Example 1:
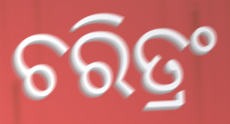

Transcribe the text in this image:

ଚରିତ୍ରଂ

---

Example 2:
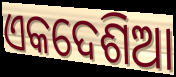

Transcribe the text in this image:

ଏକଦେଶିଆ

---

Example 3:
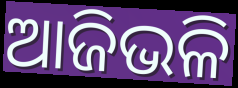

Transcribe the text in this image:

ଆଜିଭଳି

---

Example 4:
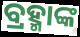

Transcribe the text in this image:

ବ୍ରହ୍ମାଙ୍କ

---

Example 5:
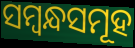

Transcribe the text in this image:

ସମ୍ୱନ୍ଧସମୂହ